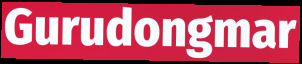
Gurudongmar